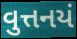
વુત્તનયં